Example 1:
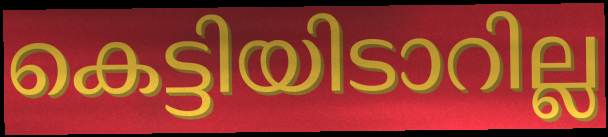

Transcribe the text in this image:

കെട്ടിയിടാറില്ല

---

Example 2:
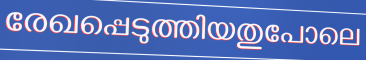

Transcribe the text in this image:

രേഖപ്പെടുത്തിയതുപോലെ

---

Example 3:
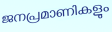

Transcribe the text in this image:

ജനപ്രമാണികളും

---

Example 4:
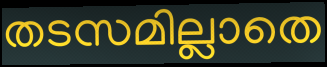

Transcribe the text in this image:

തടസമില്ലാതെ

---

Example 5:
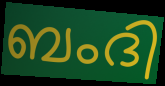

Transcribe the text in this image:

ബംദി